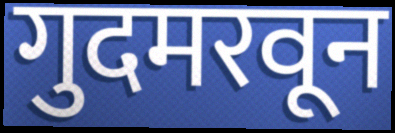
गुदमरवून